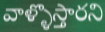
వాళ్ళొస్తారని